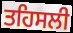
ਤਹਿਸਲੀ